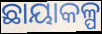
ଛାୟାକଳ୍ପ